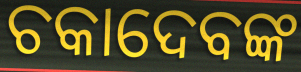
ଚକାଦେବଙ୍କ